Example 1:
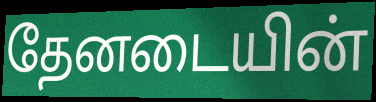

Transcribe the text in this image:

தேனடையின்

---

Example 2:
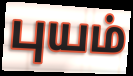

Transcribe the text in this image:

புயம்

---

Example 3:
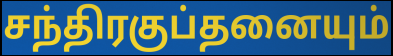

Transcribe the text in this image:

சந்திரகுப்தனையும்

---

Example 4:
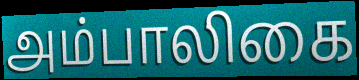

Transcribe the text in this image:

அம்பாலிகை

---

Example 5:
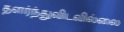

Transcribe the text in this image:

தளர்ந்துவிடவில்லை